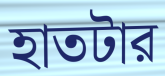
হাতটার